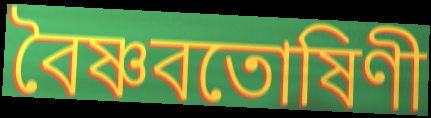
বৈষ্ণবতোষিণী